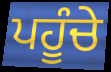
ਪਹੂੰਚੇ